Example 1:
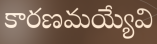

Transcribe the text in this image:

కారణమయ్యేవి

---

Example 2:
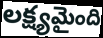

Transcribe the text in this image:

లక్ష్యమైంది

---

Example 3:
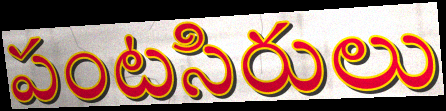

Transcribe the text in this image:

పంటసిరులు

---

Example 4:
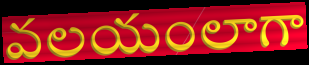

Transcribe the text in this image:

వలయంలాగా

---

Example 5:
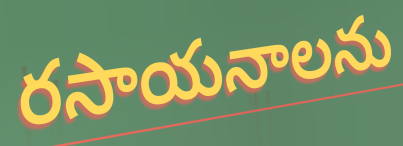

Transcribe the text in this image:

రసాయనాలను